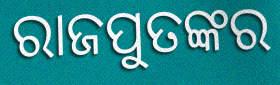
ରାଜପୁତଙ୍କର